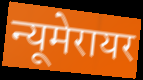
न्यूमेरायर